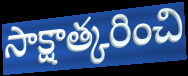
సాక్షాత్కరించి